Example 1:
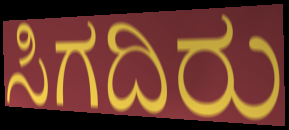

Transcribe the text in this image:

ಸಿಗದಿರು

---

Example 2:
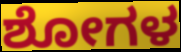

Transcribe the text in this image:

ಶೋಗಳ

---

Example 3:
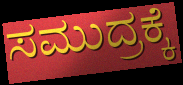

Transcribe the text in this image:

ಸಮುದ್ರಕ್ಕೆ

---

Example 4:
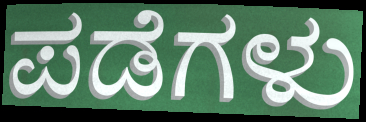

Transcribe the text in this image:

ಪಡೆಗಳು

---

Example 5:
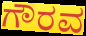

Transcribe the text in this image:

ಗೌರವ